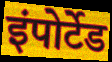
इंपोर्टेड